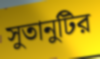
সুতানুটির